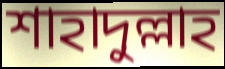
শাহাদুল্লাহ